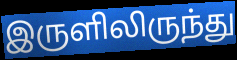
இருளிலிருந்து